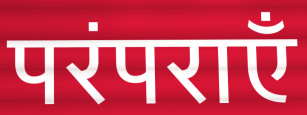
परंपराएँ